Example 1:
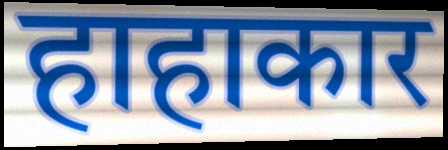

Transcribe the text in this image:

हाहाकार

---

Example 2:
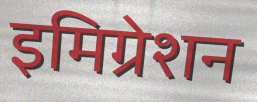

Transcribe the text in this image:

इमिग्रेशन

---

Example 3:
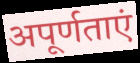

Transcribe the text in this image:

अपूर्णताएं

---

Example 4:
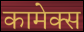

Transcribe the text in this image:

कामेक्स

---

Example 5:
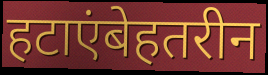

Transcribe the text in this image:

हटाएंबेहतरीन